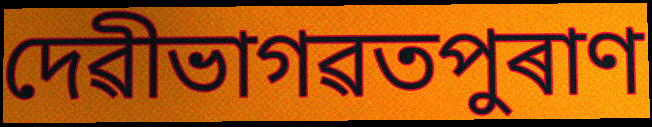
দেৱীভাগৱতপুৰাণ